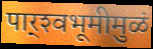
पार्श्वभूमीमुळं